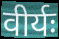
वीर्यः